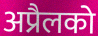
अप्रैलको